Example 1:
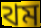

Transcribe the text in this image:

থম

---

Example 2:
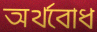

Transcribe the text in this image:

অৰ্থবোধ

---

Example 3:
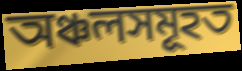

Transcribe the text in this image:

অঞ্চলসমূহত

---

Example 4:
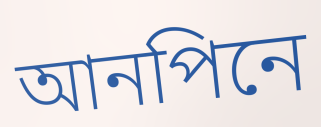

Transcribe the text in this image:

আনপিনে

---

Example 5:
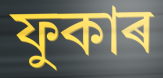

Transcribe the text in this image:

ফুকাৰ